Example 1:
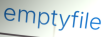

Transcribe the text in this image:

emptyfile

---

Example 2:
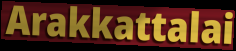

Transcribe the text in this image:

Arakkattalai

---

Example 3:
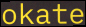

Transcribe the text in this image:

okate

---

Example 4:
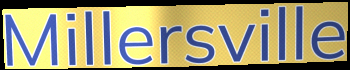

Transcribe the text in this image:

Millersville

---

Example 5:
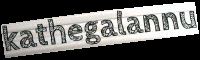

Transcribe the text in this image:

kathegalannu